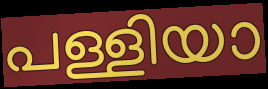
പള്ളിയാ